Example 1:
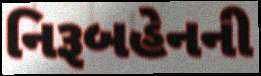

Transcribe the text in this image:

નિરૂબહેનની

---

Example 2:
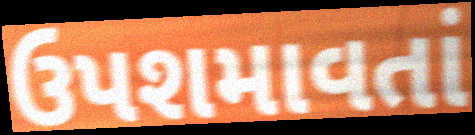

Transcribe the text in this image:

ઉપશમાવતાં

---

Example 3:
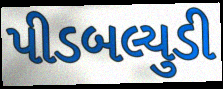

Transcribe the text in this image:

પીડબલ્યુડી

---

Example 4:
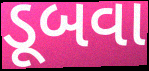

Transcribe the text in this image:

ડૂબવા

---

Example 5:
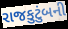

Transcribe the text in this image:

રાજકુટુંબની